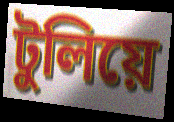
টুলিয়ে